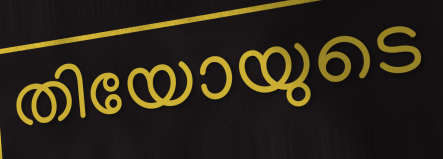
തിയോയുടെ